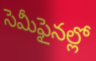
సెమీఫైనల్లో